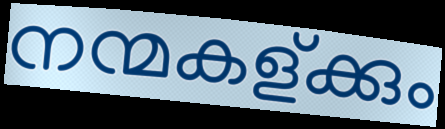
നന്മകള്ക്കും